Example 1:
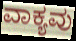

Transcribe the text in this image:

ವಾಕ್ಯವು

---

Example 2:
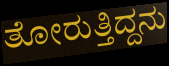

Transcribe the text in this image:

ತೋರುತ್ತಿದ್ದನು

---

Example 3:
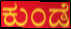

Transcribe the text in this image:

ಕುಂಡೆ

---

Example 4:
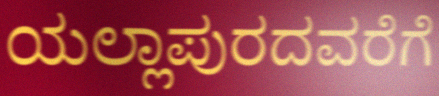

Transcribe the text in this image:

ಯಲ್ಲಾಪುರದವರೆಗೆ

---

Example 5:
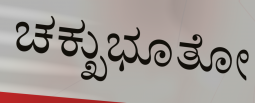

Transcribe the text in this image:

ಚಕ್ಖುಭೂತೋ